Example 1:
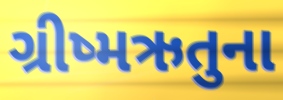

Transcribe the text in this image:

ગ્રીષ્મઋતુના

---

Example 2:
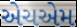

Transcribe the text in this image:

એચએમ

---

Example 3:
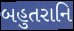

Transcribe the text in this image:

બહુતરાનિ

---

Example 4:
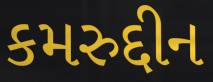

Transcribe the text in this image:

કમરુદ્દીન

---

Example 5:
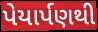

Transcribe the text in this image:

પેયાર્પણથી